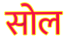
सोल